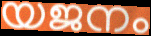
യജനം